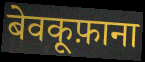
बेवकूफ़ाना